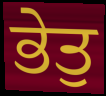
ਭੇਤੁ